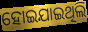
ହୋଇଯାଇଥିଲି